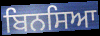
ਬਿਨਸਿਆ